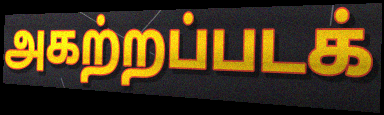
அகற்றப்படக்